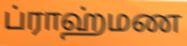
ப்ராஹ்மண